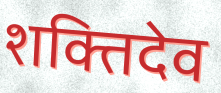
शक्तिदेव